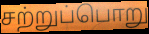
சற்றுப்பொறு